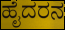
ಹೈದರನ